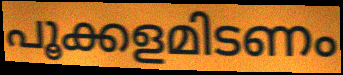
പൂക്കളമിടണം